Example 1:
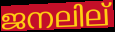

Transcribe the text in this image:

ജനലില്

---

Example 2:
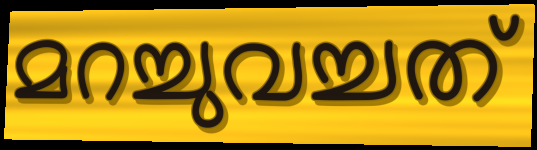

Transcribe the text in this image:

മറച്ചുവച്ചത്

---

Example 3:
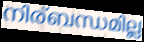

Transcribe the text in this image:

നിര്ബന്ധമില്ല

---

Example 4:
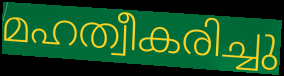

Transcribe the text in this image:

മഹത്വീകരിച്ചു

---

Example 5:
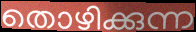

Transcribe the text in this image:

തൊഴിക്കുന്ന